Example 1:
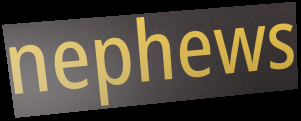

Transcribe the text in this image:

nephews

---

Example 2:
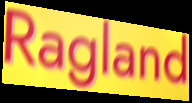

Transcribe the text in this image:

Ragland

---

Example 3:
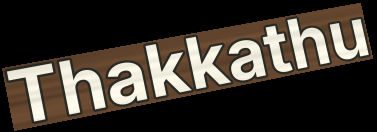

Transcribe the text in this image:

Thakkathu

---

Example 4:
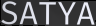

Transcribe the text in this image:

SATYA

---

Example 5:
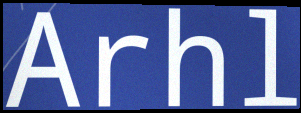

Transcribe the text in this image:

Arhl